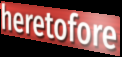
heretofore